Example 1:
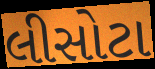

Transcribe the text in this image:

લીસોટા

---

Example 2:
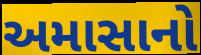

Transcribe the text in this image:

અમાસાનો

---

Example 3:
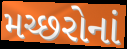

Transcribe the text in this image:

મચ્છરોનાં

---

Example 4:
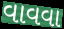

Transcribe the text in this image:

વાવવા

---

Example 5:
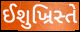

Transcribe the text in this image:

ઈશુખ્રિસ્તે